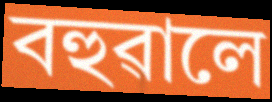
বহুৱালে